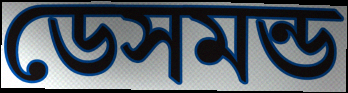
ডেসমন্ড